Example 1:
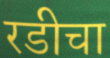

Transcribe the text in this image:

रडीचा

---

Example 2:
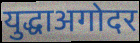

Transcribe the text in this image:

युद्धाअगोदर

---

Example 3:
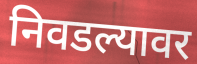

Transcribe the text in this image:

निवडल्यावर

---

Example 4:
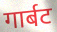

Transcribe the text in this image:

गार्बट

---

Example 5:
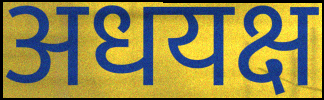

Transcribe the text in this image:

अधयक्ष